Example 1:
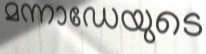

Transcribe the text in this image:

മന്നാഡേയുടെ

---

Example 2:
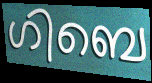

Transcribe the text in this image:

ഗിബെ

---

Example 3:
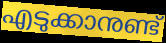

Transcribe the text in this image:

എടുക്കാനുണ്ട്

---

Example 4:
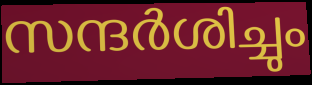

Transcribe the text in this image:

സന്ദർശിച്ചും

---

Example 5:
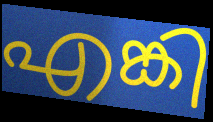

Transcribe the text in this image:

എങ്കി